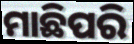
ମାଛିପରି